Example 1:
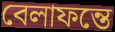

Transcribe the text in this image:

বেলাফন্তে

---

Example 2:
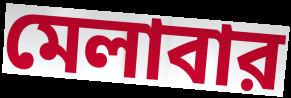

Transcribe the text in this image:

মেলাবার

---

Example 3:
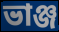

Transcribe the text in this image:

ভাঞ্জ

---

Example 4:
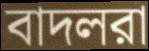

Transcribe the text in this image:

বাদলরা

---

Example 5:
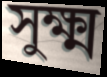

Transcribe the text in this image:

সুক্ষ্ম